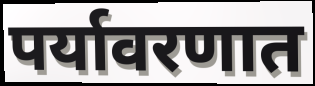
पर्यावरणात